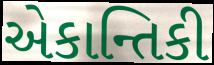
એકાન્તિકી